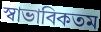
স্বাভাবিকতম